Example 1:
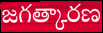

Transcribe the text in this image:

జగత్కారణ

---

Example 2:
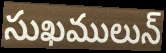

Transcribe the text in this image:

సుఖములున్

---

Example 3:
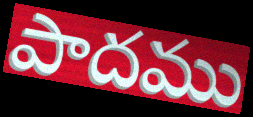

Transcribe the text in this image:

పాదము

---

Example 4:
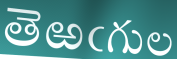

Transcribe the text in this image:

తెఱఁగుల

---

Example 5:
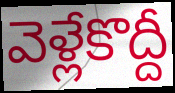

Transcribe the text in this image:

వెళ్లేకొద్దీ